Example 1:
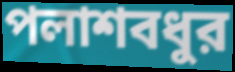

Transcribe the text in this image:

পলাশবধুর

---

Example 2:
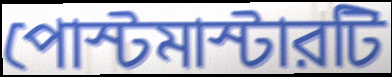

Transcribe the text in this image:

পোস্টমাস্টারটি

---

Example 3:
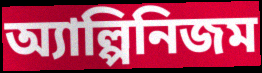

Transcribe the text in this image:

অ্যাল্পিনিজম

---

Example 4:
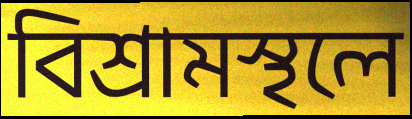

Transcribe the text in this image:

বিশ্রামস্থলে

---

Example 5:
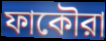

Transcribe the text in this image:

ফাকৌরা